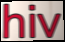
hiv